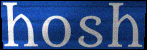
hosh